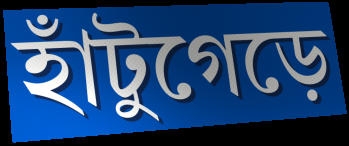
হাঁটুগেড়ে